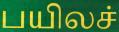
பயிலச்